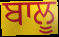
ਬਾਲੂ